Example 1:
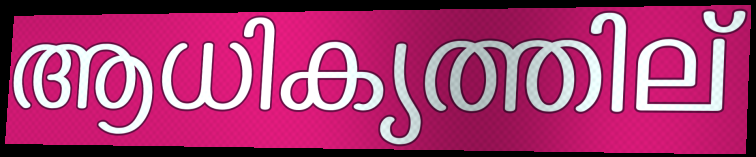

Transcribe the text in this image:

ആധിക്യത്തില്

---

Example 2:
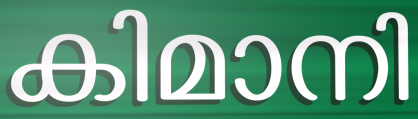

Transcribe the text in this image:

കിമാനി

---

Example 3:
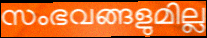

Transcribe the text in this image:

സംഭവങ്ങളുമില്ല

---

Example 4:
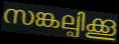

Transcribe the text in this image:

സങ്കല്പിക്കൂ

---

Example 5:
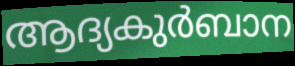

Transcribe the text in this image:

ആദ്യകുർബാന